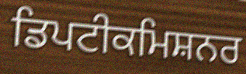
ਡਿਪਟੀਕਮਿਸ਼ਨਰ